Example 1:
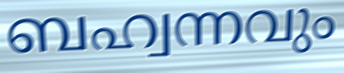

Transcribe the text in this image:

ബഹ്വന്നവും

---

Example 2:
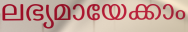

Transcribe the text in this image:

ലഭ്യമായേക്കാം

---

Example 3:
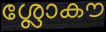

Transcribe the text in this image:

ശ്ലോകൗ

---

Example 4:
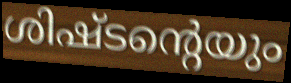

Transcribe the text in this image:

ശിഷ്ടന്റെയും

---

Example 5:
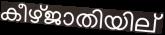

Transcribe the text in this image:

കീഴ്ജാതിയില്